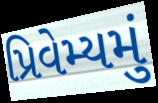
પ્રિવેમ્યમું